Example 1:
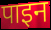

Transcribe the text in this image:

पाइन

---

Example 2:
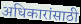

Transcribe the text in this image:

अधिकारांसाठी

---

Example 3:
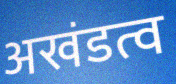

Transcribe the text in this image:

अखंडत्व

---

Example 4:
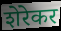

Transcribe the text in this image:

शेरेकर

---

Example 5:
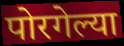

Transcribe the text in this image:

पोरगेल्या